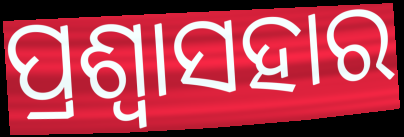
ପ୍ରଶ୍ଵାସହାର